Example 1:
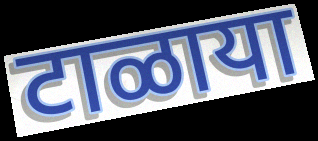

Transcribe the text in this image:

टाळाया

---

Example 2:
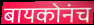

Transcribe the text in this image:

बायकोनंच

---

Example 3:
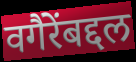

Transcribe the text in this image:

वगैरेंबद्दल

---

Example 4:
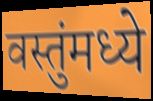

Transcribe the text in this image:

वस्तुंमध्ये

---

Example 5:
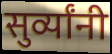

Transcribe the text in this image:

सुर्व्यांनी